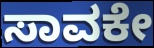
ಸಾವಕೇ